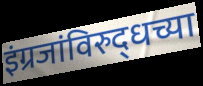
इंग्रजांविरुद्धच्या